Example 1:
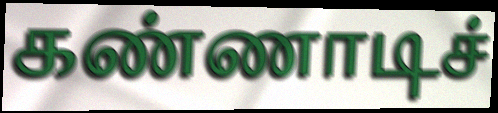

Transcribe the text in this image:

கண்ணாடிச்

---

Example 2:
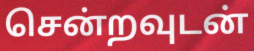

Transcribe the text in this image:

சென்றவுடன்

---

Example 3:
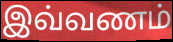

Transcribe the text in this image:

இவ்வணம்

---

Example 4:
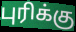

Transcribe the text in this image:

புரிக்கு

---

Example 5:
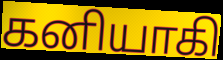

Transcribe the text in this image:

கனியாகி